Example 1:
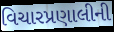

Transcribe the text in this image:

વિચારપ્રણાલીની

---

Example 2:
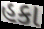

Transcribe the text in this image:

હકા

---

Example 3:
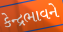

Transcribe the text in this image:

કેન્દ્રભાવને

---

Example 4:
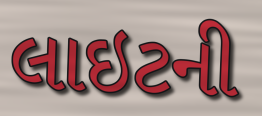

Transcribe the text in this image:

લાઇટની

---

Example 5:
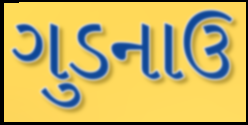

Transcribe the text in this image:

ગુડનાઉ